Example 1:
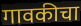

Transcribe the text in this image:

गावकीचा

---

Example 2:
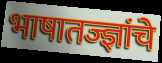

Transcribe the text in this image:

भाषातज्ज्ञांचे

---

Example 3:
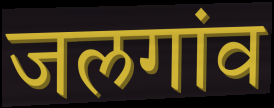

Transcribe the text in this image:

जलगांव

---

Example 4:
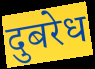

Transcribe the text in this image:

दुबरेध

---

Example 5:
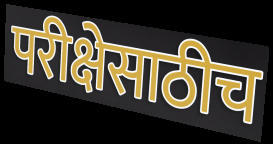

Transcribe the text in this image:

परीक्षेसाठीच